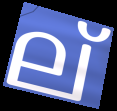
ല്